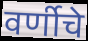
वर्णीचे